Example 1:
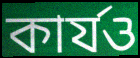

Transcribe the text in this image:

কাৰ্যও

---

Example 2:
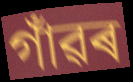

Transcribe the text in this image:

গাঁৱৰ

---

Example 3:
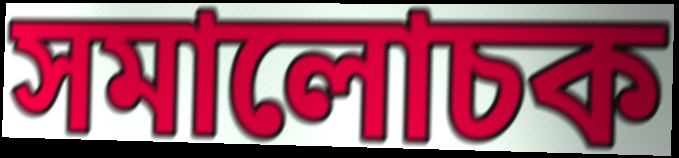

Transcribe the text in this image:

সমালোচক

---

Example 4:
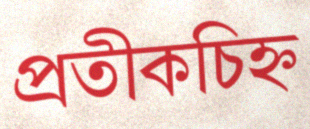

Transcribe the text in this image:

প্ৰতীকচিহ্ন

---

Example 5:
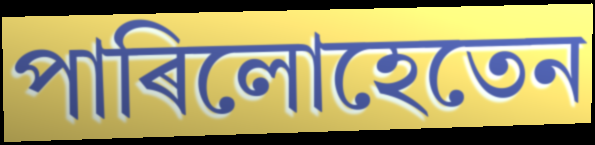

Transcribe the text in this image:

পাৰিলোহেতেন